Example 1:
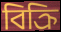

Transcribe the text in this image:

বিক্ৰি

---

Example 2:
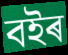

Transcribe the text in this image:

বইৰ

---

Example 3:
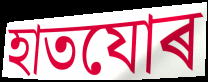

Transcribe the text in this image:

হাতযোৰ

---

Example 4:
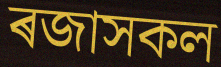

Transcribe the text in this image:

ৰজাসকল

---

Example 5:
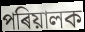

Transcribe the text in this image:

পৰিয়ালক